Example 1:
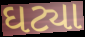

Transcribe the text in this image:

ઘટ્યા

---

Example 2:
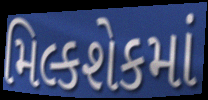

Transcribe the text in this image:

મિલ્કશેકમાં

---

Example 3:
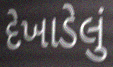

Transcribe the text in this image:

દેખાડેલું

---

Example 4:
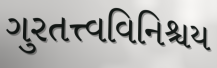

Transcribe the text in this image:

ગુરતત્ત્વવિનિશ્ચય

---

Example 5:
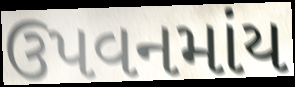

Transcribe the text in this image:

ઉપવનમાંય